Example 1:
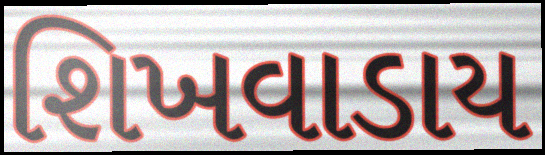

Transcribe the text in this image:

શિખવાડાય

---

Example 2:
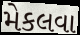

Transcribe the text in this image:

મેકલવા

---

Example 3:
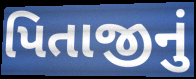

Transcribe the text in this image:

પિતાજીનું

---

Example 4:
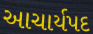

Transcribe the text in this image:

આચાર્યપદ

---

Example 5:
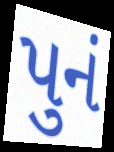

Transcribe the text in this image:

પુનં